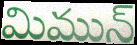
మిమున్